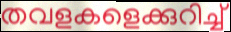
തവളകളെക്കുറിച്ച്